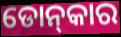
ଡୋନ୍‍କାର